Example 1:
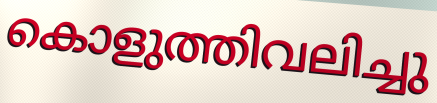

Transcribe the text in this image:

കൊളുത്തിവലിച്ചു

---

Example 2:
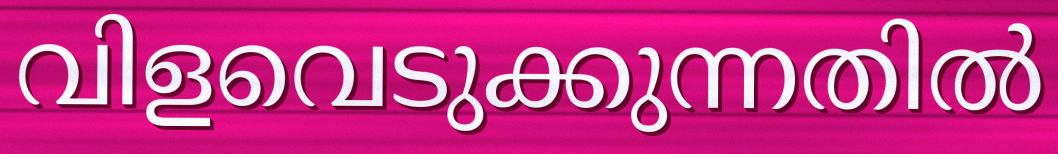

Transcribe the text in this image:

വിളവെടുക്കുന്നതിൽ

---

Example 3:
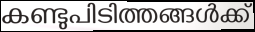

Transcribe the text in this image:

കണ്ടുപിടിത്തങ്ങൾക്ക്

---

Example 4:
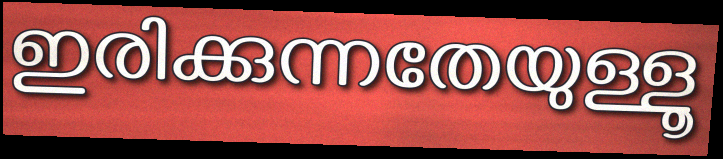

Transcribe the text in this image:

ഇരിക്കുന്നതേയുള്ളൂ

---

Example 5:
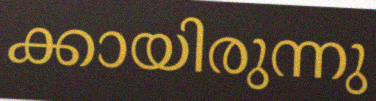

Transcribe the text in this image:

ക്കായിരുന്നു